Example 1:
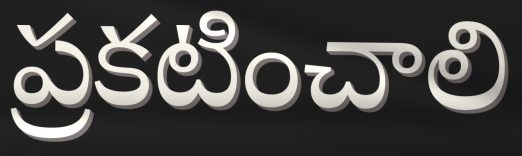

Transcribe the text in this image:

ప్రకటించాలి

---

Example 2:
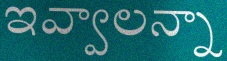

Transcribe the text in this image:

ఇవ్వాలన్నా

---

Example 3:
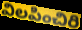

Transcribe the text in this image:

విలపించిరి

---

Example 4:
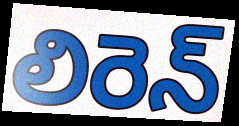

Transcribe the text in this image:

లిరెన్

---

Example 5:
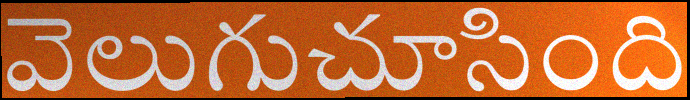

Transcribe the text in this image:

వెలుగుచూసింది